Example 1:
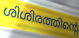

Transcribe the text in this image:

ശിശിരത്തിന്റെ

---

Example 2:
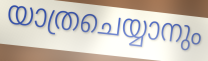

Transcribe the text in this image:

യാത്രചെയ്യാനും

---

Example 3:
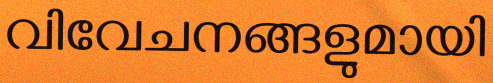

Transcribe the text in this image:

വിവേചനങ്ങളുമായി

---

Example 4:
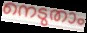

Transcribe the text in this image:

നെടുതാം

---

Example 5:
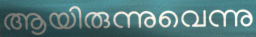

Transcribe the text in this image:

ആയിരുന്നുവെന്നു